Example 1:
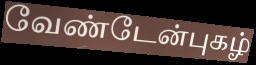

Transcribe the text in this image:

வேண்டேன்புகழ்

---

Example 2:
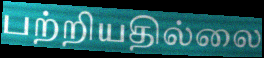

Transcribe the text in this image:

பற்றியதில்லை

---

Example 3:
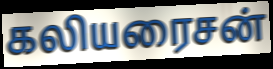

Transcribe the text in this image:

கலியரைசன்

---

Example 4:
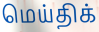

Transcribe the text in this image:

மெய்திக்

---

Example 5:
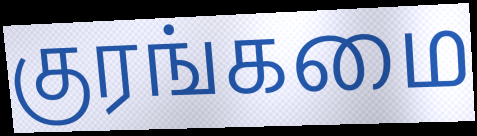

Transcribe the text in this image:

குரங்கமை